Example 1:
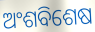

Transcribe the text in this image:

ଅଂଶବିଶେଷ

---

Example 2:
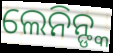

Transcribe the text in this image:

ଲେନିନ୍ଙ୍କ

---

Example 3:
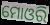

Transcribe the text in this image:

ମୋଓରି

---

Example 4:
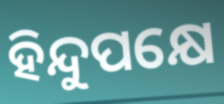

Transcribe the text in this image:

ହିନ୍ଦୁପକ୍ଷେ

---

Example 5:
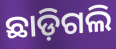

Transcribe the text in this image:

ଛାଡ଼ିଗଲି